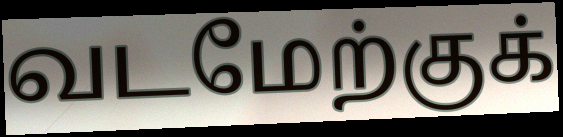
வடமேற்குக்